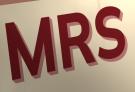
MRS